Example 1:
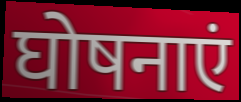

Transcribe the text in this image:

घोषनाएं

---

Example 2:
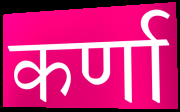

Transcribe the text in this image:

कर्णा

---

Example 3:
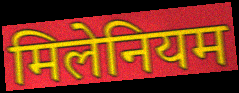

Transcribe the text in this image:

मिलेनियम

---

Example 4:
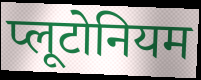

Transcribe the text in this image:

प्लूटोनियम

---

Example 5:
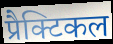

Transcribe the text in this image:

प्रैक्टिकल